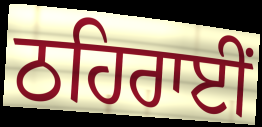
ਠਹਿਰਾਈਂ